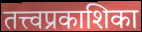
तत्त्वप्रकाशिका